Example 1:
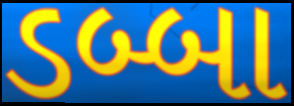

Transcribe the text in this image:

ડબ્બા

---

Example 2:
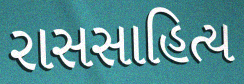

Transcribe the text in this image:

રાસસાહિત્ય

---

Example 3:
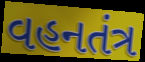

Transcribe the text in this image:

વહનતંત્ર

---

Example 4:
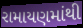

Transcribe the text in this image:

રામાયણમાંથી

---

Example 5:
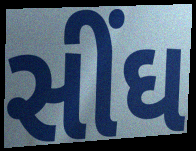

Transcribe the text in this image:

સીંઘ